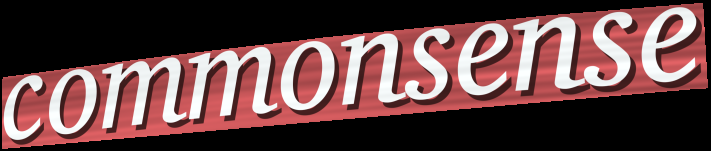
commonsense